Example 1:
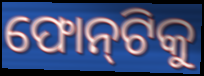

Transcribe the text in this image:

ଫୋନ୍‌ଟିକୁ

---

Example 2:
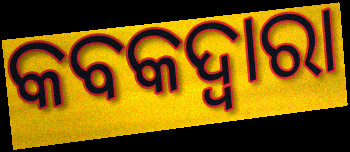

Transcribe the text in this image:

କବକଦ୍ୱାରା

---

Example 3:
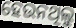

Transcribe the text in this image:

ହେଉନଥିଲୁ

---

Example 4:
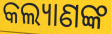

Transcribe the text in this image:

କଲ୍ୟାଣଙ୍କ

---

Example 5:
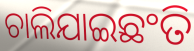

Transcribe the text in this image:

ଚାଲିଯାଇଛଂତି